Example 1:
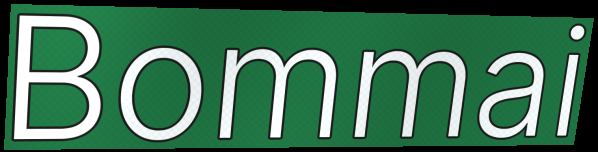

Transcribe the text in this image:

Bommai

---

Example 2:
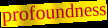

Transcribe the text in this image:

profoundness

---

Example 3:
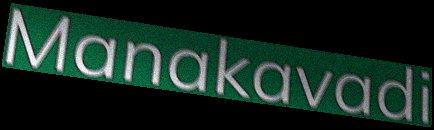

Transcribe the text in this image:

Manakavadi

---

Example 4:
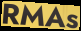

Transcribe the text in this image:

RMAs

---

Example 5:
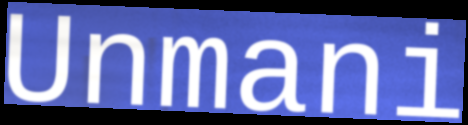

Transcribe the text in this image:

Unmani